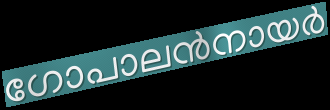
ഗോപാലൻനായർ